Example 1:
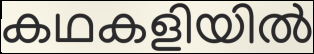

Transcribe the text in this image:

കഥകളിയിൽ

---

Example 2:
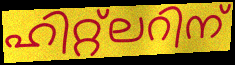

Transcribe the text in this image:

ഹിറ്റ്ലറിന്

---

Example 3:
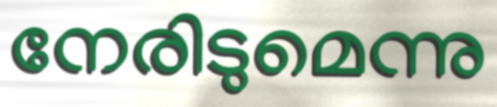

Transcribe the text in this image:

നേരിടുമെന്നു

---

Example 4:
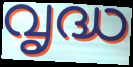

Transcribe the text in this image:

വൃദ്ധ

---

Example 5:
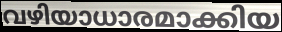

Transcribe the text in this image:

വഴിയാധാരമാക്കിയ